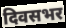
दिवसभर